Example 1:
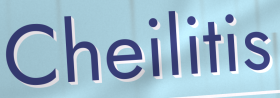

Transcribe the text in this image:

Cheilitis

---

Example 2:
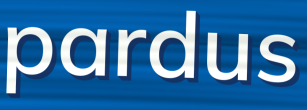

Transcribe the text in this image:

pardus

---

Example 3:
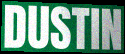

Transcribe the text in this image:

DUSTIN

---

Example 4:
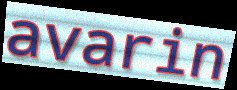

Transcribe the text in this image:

avarin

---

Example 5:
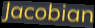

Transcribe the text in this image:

Jacobian